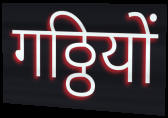
गठ्ठियों